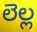
లెల్ల